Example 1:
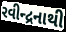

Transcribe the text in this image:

રવીન્દ્રનાથી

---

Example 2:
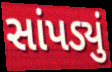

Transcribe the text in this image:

સાંપડ્યું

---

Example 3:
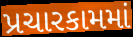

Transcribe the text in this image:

પ્રચારકામમાં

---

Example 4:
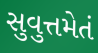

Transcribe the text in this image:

સુવુત્તમેતં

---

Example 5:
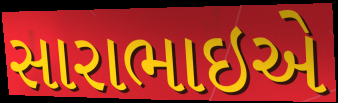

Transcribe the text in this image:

સારાભાઇએ